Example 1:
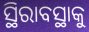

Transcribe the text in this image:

ସ୍ଥିରାବସ୍ଥାକୁ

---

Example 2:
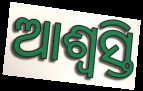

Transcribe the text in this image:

ଆଶ୍ଵସ୍ତି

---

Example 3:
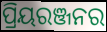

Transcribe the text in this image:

ପ୍ରିୟରଞ୍ଜନର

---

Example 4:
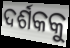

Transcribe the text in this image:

ଦର୍ଶକକୁ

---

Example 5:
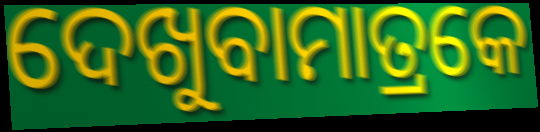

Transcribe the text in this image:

ଦେଖୁବାମାତ୍ରକେ